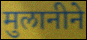
मुलानीने